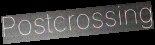
Postcrossing